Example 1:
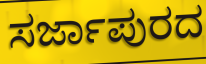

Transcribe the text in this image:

ಸರ್ಜಾಪುರದ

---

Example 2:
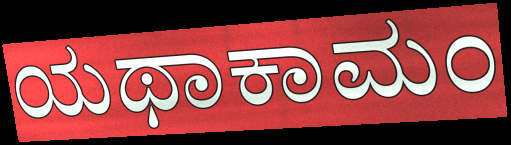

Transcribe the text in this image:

ಯಥಾಕಾಮಂ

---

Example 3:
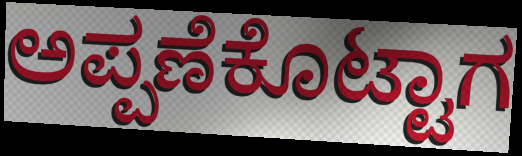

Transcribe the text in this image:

ಅಪ್ಪಣೆಕೊಟ್ಟಾಗ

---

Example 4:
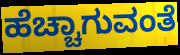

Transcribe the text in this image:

ಹೆಚ್ಚಾಗುವಂತೆ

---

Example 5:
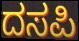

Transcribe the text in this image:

ದಸಪಿ